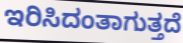
ಇರಿಸಿದಂತಾಗುತ್ತದೆ